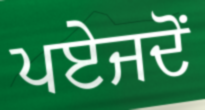
ਪਏਜਦੋਂ